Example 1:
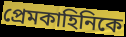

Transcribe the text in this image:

প্রেমকাহিনিকে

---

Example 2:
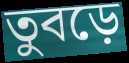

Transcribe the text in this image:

তুবড়ে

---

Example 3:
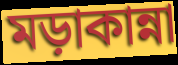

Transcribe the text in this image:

মড়াকান্না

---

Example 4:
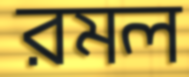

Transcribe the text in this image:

রমল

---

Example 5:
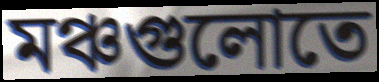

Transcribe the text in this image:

মঞ্চগুলোতে